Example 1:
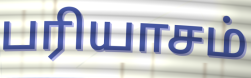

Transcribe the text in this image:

பரியாசம்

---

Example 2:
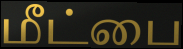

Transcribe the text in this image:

மீட்பை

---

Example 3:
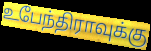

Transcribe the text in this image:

உபேந்திராவுக்கு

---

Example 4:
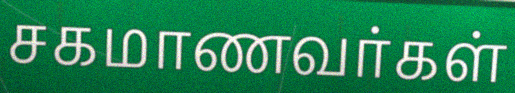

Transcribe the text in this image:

சகமாணவர்கள்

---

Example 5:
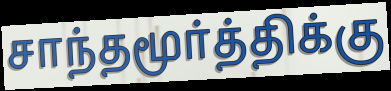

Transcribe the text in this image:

சாந்தமூர்த்திக்கு